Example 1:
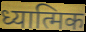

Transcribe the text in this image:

ध्यात्मिक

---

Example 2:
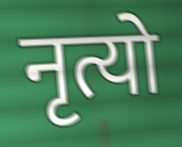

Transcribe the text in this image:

नृत्यो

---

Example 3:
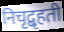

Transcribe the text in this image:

निचृद्बृहती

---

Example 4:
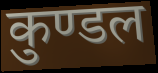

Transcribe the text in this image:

कुण्डल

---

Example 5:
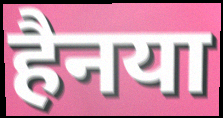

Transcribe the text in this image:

हैनया